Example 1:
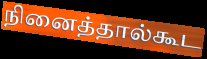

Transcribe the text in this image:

நினைத்தால்கூட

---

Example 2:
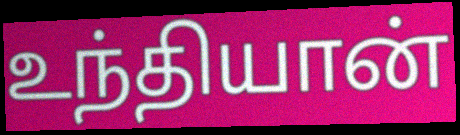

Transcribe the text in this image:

உந்தியான்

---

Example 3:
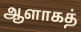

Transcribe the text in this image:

ஆளாகத்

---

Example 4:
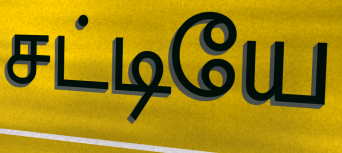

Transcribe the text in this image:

சட்டியே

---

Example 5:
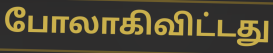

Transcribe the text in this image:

போலாகிவிட்டது